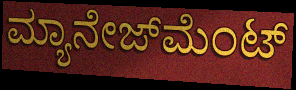
ಮ್ಯಾನೇಜ್‍ಮೆಂಟ್